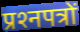
प्रश्नपत्रों